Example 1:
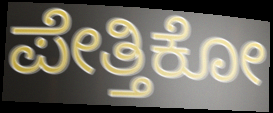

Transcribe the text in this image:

ಪೇತ್ತಿಕೋ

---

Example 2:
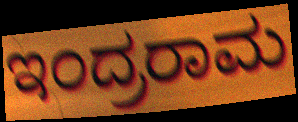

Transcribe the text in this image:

ಇಂದ್ರರಾಮ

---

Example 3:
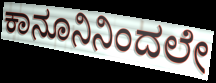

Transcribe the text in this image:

ಕಾನೂನಿನಿಂದಲೇ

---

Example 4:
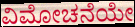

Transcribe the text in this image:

ವಿಮೋಚನೆಯೇ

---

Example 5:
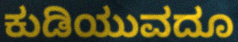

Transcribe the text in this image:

ಕುಡಿಯುವದೂ